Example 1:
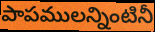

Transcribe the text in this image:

పాపములన్నింటినీ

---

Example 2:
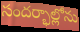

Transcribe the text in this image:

సందర్భాల్లోను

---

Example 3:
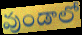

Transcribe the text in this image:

వుండాలో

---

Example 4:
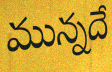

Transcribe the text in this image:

మున్నదే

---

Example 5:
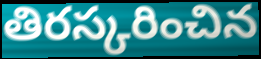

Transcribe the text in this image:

తిరస్కరించిన